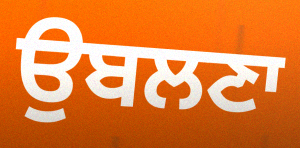
ਉਬਲਣਾ